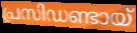
പ്രസിഡണ്ടായ്